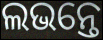
ଲଭନ୍ତେ